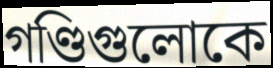
গণ্ডিগুলোকে